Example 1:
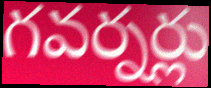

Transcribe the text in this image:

గవర్నర్లు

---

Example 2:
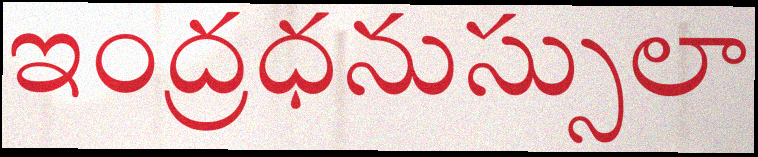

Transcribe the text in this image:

ఇంద్రధనుస్సులా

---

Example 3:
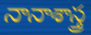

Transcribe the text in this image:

నానాశాస్త్ర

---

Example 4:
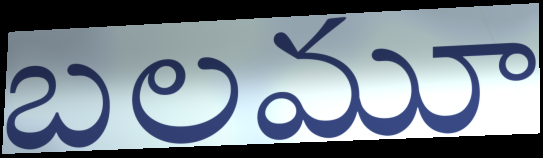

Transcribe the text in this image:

బలమూ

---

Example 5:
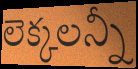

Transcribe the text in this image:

లెక్కలన్నీ